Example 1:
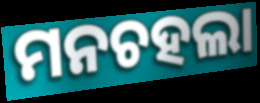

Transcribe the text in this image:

ମନଚହଲା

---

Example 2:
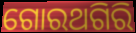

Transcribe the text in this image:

ଗୋରଥଗିରି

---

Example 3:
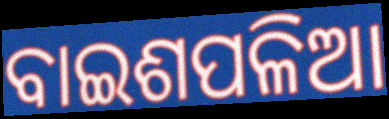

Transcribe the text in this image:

ବାଇଶପଳିଆ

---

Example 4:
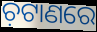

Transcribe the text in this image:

ଚ଼ଟାଣରେ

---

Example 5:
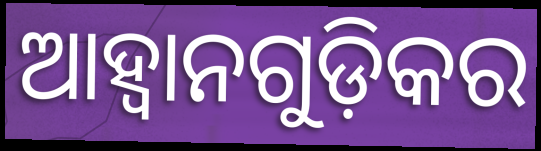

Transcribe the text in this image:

ଆହ୍ଵାନଗୁଡ଼ିକର